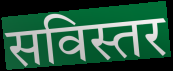
सविस्तर